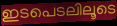
ഇടപെടലിലൂടെ